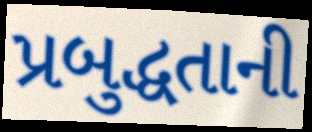
પ્રબુદ્ધતાની